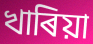
খাৰিয়া